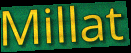
Millat